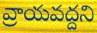
వ్రాయవద్దని